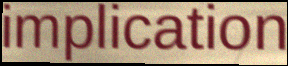
implication